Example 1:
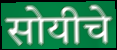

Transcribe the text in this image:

सोयीचे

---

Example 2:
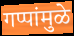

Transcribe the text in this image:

गप्पांमुळे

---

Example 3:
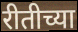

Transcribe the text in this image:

रीतीच्या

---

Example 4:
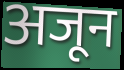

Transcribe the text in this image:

अजून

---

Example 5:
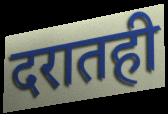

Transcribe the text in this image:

दरातही